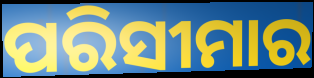
ପରିସୀମାର